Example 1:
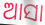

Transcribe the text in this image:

ଆସା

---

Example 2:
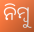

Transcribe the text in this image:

ନିମ୍ବୁ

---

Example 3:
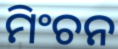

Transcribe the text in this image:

ମିଂଚନ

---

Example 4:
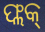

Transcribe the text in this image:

ଫ୍ଲକ୍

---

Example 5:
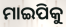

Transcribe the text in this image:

ମାଇପିକୁ